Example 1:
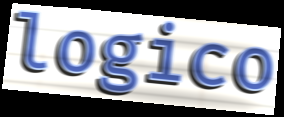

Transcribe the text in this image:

logico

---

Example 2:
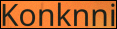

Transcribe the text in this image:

Konknni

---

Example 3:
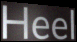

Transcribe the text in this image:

Heel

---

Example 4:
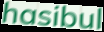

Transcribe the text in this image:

hasibul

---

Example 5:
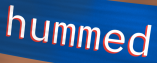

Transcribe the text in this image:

hummed